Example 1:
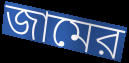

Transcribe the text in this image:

জামের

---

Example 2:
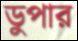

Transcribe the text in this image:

ডুপার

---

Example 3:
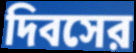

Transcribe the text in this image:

দিবসের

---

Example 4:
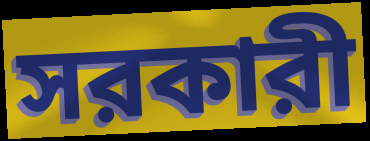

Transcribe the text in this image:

সরকারী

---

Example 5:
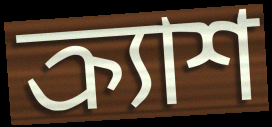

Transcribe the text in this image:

ক্র্যাশ